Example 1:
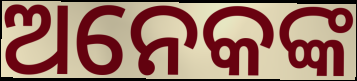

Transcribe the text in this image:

ଅନେକଙ୍କ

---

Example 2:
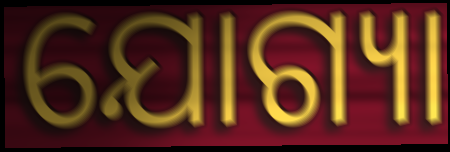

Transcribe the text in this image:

ଯୋଗ୍ୟା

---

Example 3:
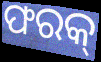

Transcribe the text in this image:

ଫରକ୍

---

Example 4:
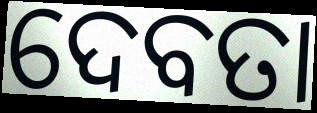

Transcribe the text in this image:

ଦେବତା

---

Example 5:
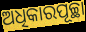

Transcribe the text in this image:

ଅଧିକାରପୂଚ୍ଛା